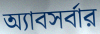
অ্যাবসর্বার